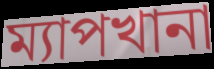
ম্যাপখানা